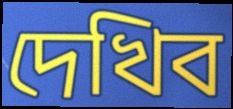
দেখিব